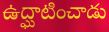
ఉద్ఘాటించాడు